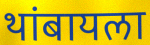
थांबायला